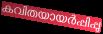
കവിതയായർപ്പിപ്പു